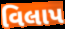
વિલાપ